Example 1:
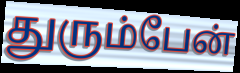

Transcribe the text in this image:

துரும்பேன்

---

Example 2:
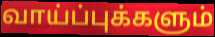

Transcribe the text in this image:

வாய்ப்புக்களும்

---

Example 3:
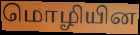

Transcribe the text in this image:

மொழியின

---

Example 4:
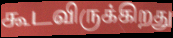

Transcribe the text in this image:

கூடவிருக்கிறது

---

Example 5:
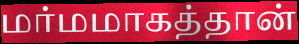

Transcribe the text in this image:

மர்மமாகத்தான்